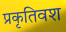
प्रकृतिवश